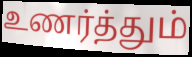
உணர்த்தும்